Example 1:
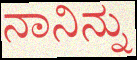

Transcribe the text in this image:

ನಾನಿನ್ನು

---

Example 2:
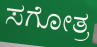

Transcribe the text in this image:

ಸಗೋತ್ರ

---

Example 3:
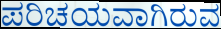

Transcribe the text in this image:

ಪರಿಚಯವಾಗಿರುವ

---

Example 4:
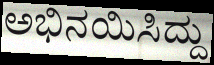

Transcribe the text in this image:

ಅಭಿನಯಿಸಿದ್ದು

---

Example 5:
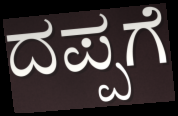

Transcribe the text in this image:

ದಪ್ಪಗೆ